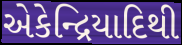
એકેન્દ્રિયાદિથી